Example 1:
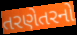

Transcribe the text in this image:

તરણેતરનો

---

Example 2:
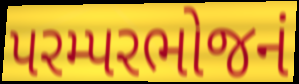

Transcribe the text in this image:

પરમ્પરભોજનં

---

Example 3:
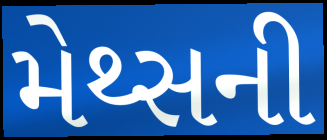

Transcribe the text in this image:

મેથ્સની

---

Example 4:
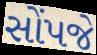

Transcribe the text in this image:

સોંપજે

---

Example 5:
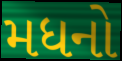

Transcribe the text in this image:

મધનો